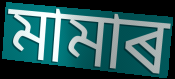
মামাৰ